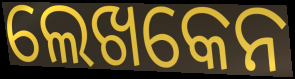
ଲେଖକେନ